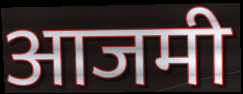
आजमी